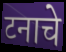
टनाचे